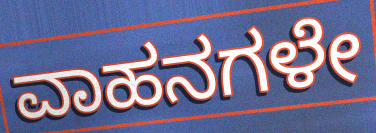
ವಾಹನಗಳೇ